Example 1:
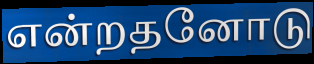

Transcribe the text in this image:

என்றதனோடு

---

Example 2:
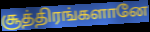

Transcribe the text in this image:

சூத்திரங்களானே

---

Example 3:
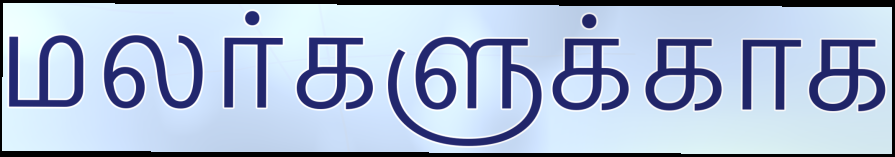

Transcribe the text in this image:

மலர்களுக்காக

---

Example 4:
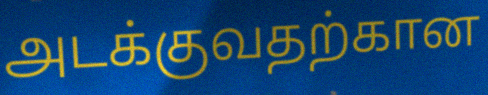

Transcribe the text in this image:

அடக்குவதற்கான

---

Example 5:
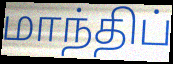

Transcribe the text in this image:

மாந்திப்